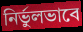
নির্ভুলভাবে